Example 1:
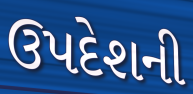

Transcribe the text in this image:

ઉપદેશની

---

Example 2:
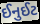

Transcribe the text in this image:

ઈનુઈટ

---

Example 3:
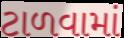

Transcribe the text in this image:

ટાળવામાં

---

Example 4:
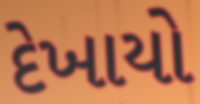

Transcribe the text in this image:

દેખાયો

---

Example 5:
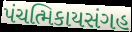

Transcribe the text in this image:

પંચત્મિકાયસંગહ